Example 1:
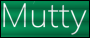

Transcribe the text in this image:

Mutty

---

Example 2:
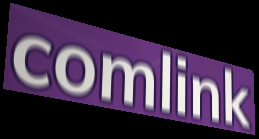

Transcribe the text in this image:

comlink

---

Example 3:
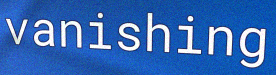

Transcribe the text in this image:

vanishing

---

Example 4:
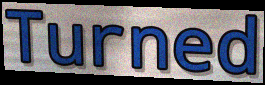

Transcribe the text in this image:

Turned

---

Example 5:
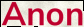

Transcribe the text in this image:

Anon